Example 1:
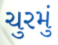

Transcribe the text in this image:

ચુરમું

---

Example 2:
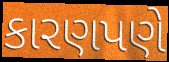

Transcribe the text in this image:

કારણપણે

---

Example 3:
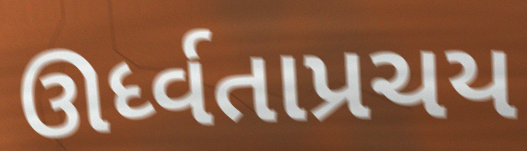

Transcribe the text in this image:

ઊર્ધ્વતાપ્રચય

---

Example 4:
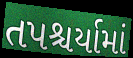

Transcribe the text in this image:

તપશ્ચર્યામાં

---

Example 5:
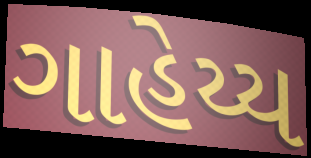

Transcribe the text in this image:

ગાહેય્ય